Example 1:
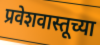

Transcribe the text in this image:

प्रवेशवास्तूच्या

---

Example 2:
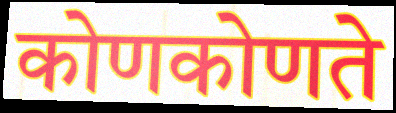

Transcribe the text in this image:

कोणकोणते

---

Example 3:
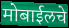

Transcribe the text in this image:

मोबाईलचे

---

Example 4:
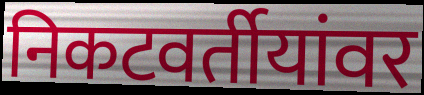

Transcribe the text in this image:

निकटवर्तीयांवर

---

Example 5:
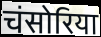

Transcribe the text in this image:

चंसोरिया